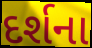
દર્શના